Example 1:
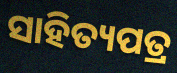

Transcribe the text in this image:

ସାହିତ୍ୟପତ୍ର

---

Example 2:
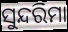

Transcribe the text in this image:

ସୁନ୍ଦରିମା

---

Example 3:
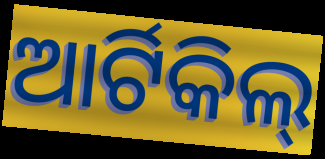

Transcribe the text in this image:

ଆର୍ଟିକିଲ୍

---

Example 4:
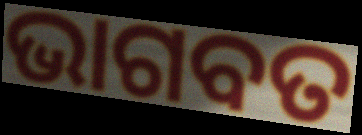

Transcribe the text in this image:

ଭାଗବତ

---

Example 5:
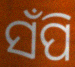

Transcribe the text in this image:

ସଁପି